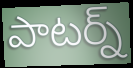
పాటర్న్